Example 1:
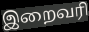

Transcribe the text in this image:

இறைவரி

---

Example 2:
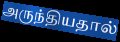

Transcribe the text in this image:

அருந்தியதால்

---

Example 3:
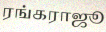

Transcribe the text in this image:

ரங்கராஜூ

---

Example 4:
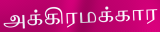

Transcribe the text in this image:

அக்கிரமக்கார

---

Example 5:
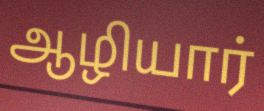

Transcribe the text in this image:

ஆழியார்